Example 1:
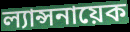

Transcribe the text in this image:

ল্যান্সনায়েক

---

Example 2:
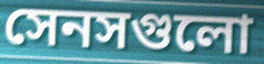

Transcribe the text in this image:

সেনসগুলো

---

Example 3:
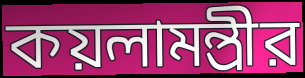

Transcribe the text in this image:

কয়লামন্ত্রীর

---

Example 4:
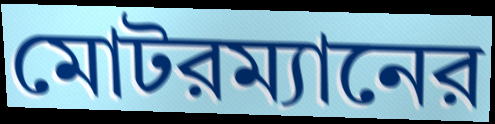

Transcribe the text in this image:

মোটরম্যানের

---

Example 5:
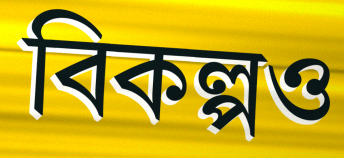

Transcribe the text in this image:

বিকল্পও